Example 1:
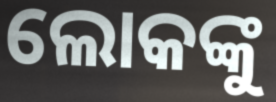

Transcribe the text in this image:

ଲୋକଙ୍କୁ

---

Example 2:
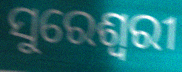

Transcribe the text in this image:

ସୁରେଶ୍ଵରୀ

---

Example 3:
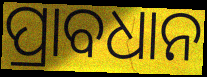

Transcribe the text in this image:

ପ୍ରାବଧାନ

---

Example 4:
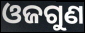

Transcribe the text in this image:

ଓଜଗୁଣ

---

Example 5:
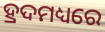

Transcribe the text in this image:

ହ୍ରଦମଧ୍ୟରେ